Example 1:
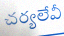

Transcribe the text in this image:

చర్యలేవీ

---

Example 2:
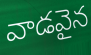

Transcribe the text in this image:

వాడవైన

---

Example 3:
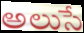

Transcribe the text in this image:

అలుసే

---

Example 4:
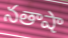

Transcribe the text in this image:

నతాషా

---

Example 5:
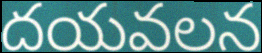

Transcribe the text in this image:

దయవలన